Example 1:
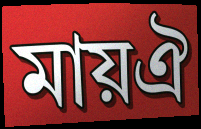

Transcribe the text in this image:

মায়ঐ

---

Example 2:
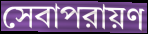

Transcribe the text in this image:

সেবাপরায়ণ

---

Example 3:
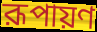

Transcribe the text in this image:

রূপায়ণ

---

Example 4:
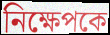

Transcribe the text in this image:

নিক্ষেপকে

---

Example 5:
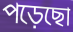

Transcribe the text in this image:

পড়েছো